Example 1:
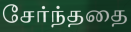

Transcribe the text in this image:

சேர்ந்ததை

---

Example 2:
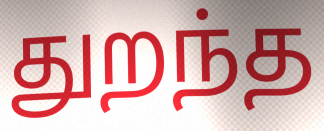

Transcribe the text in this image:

துறந்த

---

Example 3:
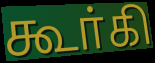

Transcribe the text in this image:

கூர்கி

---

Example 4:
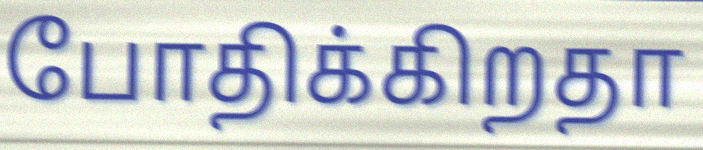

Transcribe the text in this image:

போதிக்கிறதா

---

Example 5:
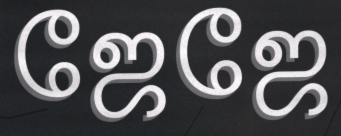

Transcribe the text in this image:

ஜேஜே